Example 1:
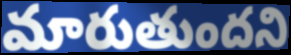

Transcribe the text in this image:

మారుతుందని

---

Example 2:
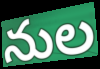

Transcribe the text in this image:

నుల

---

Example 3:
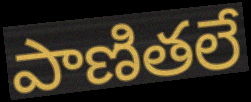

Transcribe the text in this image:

పాణితలే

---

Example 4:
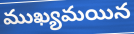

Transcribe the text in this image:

ముఖ్యమయిన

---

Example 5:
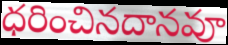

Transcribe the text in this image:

ధరించినదానవూ